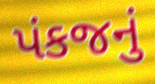
પંકજનું